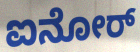
ಐನೋರ್